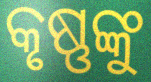
କୃଷ୍ଣଙ୍କୁ